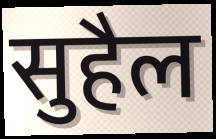
सुहैल